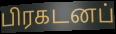
பிரகடனப்